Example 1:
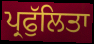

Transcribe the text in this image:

ਪ੍ਰਫੁੱਲਿਤਾ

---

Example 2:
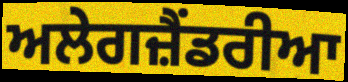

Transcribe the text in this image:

ਅਲੇਗਜ਼ੈਂਡਰੀਆ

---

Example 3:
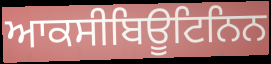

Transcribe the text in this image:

ਆਕਸੀਬਿਊਟਿਨਿਨ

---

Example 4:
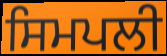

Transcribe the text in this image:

ਸਿਮਪਲੀ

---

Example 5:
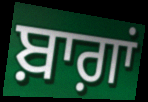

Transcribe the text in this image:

ਬ਼ਾਗ਼ਾਂ